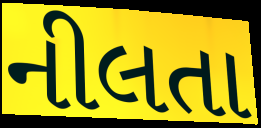
નીલતા